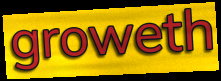
groweth